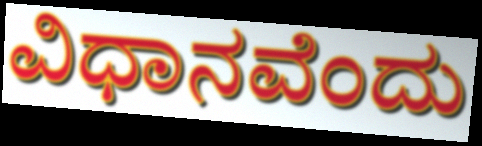
ವಿಧಾನವೆಂದು